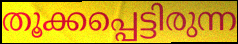
തൂക്കപ്പെട്ടിരുന്ന